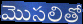
మొసలితో